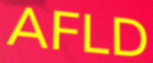
AFLD